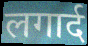
लगार्द